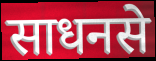
साधनसे